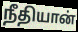
நீதியான்